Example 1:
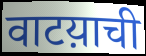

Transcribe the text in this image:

वाटय़ाची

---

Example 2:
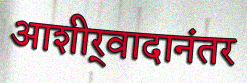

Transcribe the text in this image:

आशीर्वादानंतर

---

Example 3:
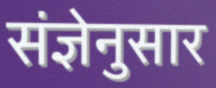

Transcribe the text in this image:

संज्ञेनुसार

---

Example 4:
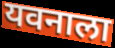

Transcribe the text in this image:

यवनाला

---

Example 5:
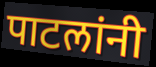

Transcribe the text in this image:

पाटलांनी